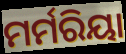
ମର୍ମରିୟା